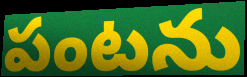
పంటను